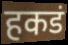
हकडं